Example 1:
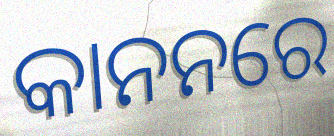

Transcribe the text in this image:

କାନନରେ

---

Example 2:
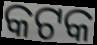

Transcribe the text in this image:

କଟକ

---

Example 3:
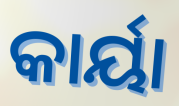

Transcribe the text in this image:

କାର୍ୟା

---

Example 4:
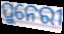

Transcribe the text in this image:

ପୁନେରୀ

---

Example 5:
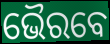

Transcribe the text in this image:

ଭୈରବେ